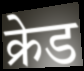
क्रेड